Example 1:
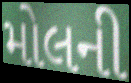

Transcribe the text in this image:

મોલની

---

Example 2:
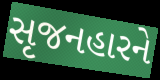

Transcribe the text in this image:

સૃજનહારને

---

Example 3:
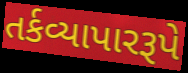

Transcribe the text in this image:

તર્કવ્યાપારરૂપે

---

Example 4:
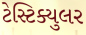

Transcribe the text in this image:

ટેસ્ટિક્યુલર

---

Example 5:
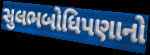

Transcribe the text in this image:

સુલભબોધિપણાનો